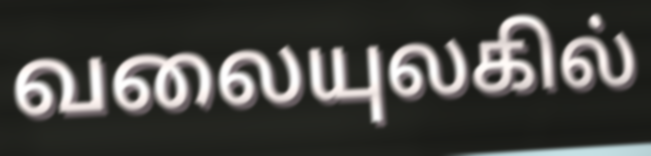
வலையுலகில்